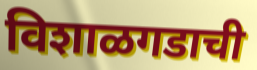
विशाळगडाची